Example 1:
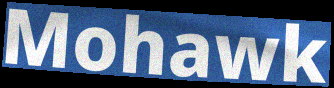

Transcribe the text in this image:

Mohawk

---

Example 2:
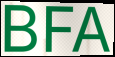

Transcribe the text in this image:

BFA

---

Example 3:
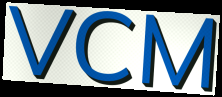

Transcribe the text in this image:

VCM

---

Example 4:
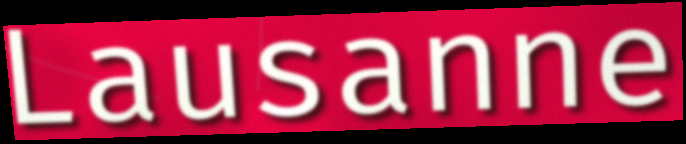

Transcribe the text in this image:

Lausanne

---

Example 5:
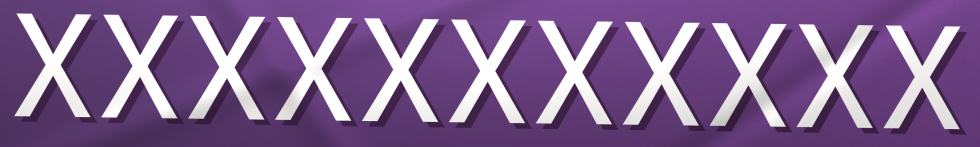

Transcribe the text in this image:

XXXXXXXXXXX